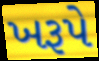
ખરૂપે